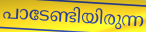
പാടേണ്ടിയിരുന്ന